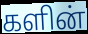
களின்